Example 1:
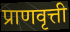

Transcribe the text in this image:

प्राणवृत्ती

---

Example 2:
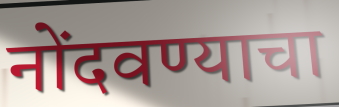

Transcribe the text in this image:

नोंदवण्याचा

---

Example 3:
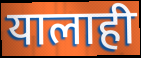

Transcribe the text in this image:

यालाही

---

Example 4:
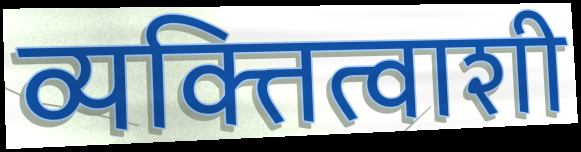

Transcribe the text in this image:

व्यक्तित्वाशी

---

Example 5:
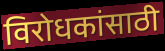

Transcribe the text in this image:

विरोधकांसाठी